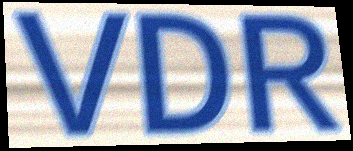
VDR